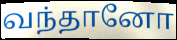
வந்தானோ